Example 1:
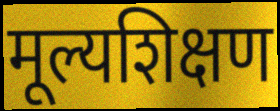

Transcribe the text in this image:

मूल्यशिक्षण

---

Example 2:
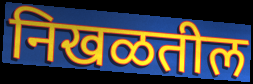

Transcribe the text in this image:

निखळतील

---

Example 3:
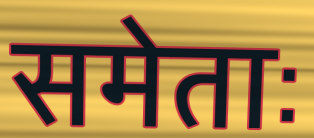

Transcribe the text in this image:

समेताः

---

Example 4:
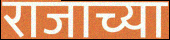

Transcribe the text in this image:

राजाच्या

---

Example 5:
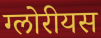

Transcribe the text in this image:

ग्लोरीयस